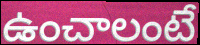
ఉంచాలంటే